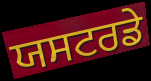
ਯਸਟਰਡੇ